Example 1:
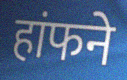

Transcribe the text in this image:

हांफने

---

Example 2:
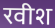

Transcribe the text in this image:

रवीश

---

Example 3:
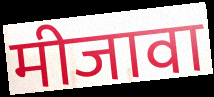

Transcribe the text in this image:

मीजावा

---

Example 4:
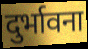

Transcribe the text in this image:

दुर्भावना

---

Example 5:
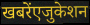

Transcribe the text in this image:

खबरेंएजुकेशन